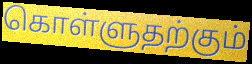
கொள்ளுதற்கும்